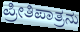
ಪ್ರೀತಿಪಾತ್ರನು